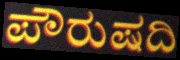
ಪೌರುಷದಿ